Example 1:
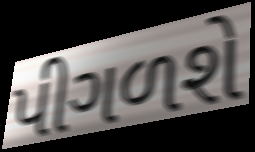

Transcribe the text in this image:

પીગળશે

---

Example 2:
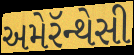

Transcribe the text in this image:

અમેરૅન્થેસી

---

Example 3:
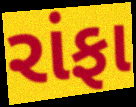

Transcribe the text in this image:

રાંફા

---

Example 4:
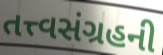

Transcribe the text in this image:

તત્ત્વસંગ્રહની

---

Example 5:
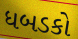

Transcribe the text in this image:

ધબડકો